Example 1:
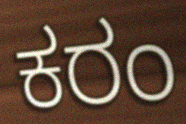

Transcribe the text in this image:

ಕರಂ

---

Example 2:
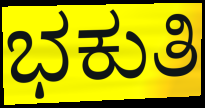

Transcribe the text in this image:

ಭಕುತಿ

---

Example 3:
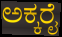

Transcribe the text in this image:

ಅಕ್ಕರೈ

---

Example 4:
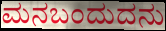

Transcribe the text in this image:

ಮನಬಂದುದನು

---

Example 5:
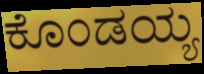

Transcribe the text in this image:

ಕೊಂಡಯ್ಯ